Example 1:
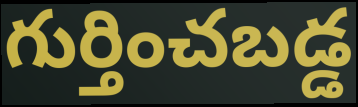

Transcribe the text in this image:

గుర్తించబడ్డ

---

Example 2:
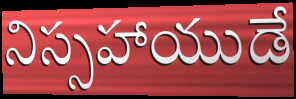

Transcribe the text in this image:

నిస్సహాయుడే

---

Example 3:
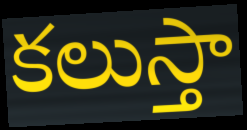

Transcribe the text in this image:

కలుస్తా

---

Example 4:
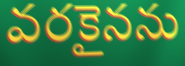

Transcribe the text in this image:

వరకైనను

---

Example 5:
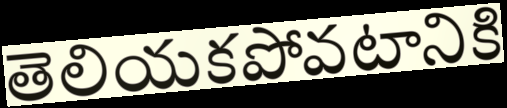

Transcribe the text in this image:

తెలియకపోవటానికి